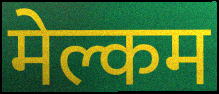
मेल्कम